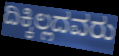
ದಿಕ್ಕಿಲ್ಲದವರು